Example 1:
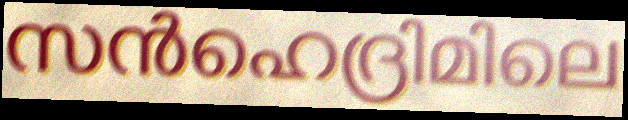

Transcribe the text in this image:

സൻഹെദ്രിമിലെ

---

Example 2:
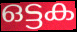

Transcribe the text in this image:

ഒട്ടക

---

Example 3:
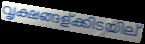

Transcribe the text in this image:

വൃക്ഷങ്ങള്ക്കിടയില്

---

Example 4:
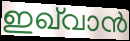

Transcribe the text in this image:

ഇഖ്‌വാൻ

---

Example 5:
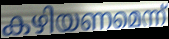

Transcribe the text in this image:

കഴിയണമെന്ന്